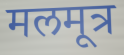
मलमूत्र